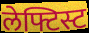
लेफ्टिस्ट